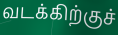
வடக்கிற்குச்